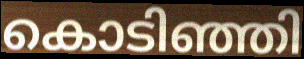
കൊടിഞ്ഞി